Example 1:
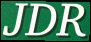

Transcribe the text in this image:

JDR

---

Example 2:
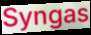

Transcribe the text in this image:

Syngas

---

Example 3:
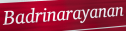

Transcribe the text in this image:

Badrinarayanan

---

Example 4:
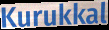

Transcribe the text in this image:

Kurukkal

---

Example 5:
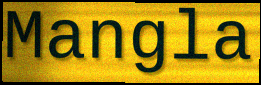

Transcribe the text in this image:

Mangla